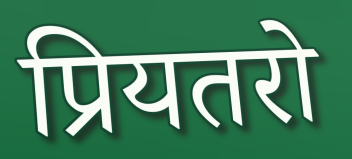
प्रियतरो